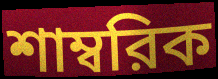
শাম্বরিক